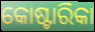
କୋଷ୍ଟାରିକା